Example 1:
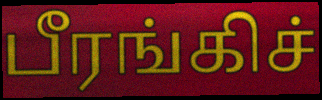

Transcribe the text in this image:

பீரங்கிச்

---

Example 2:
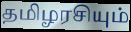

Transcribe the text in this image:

தமிழரசியும்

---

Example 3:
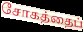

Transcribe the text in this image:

சோகத்தைப்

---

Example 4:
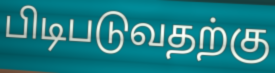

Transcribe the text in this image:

பிடிபடுவதற்கு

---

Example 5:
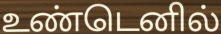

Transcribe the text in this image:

உண்டெனில்